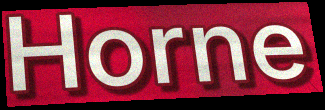
Horne